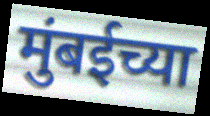
मुंबईच्या